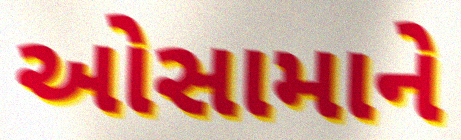
ઓસામાને